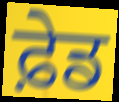
ਫ਼ੇਡ